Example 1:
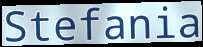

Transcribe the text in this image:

Stefania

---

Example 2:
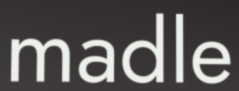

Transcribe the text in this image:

madle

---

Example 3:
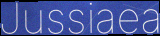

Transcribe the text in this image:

Jussiaea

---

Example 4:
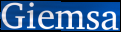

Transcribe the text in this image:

Giemsa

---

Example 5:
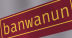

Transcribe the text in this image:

banwanun